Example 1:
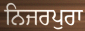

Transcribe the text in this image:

ਨਿਜਰਪੁਰਾ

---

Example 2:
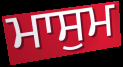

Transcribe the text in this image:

ਮਾਸੁਮ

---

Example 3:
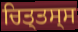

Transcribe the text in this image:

ਚਿਤ੍ਤਸ੍ਸ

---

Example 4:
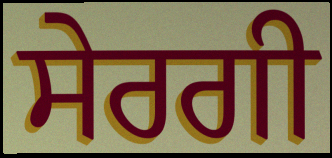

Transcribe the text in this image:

ਸੇਰਗੀ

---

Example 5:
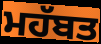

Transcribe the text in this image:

ਮਹੱਬਤ